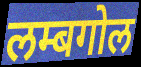
लम्बगोल